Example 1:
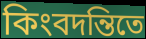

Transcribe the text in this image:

কিংবদন্তিতে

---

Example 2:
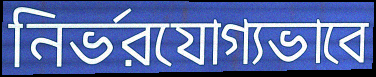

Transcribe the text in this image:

নির্ভরযোগ্যভাবে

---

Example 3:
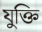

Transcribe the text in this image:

যুক্তি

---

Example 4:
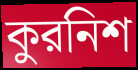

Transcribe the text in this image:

কুরনিশ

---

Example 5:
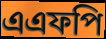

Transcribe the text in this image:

এএফপি